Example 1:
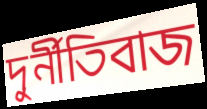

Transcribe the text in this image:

দুর্নীতিবাজ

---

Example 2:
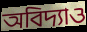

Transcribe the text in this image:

অবিদ্যাও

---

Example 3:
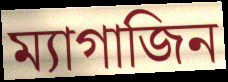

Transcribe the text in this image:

ম্যাগাজিন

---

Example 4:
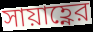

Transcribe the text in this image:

সায়াহ্ণের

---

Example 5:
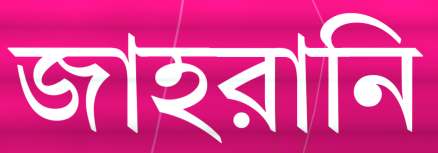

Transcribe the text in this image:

জাহরানি